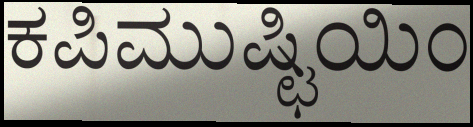
ಕಪಿಮುಷ್ಟಿಯಿಂ